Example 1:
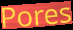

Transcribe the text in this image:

Pores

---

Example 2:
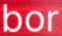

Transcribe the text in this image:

bor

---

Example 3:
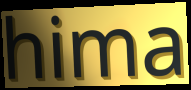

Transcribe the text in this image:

hima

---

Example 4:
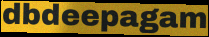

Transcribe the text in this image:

dbdeepagam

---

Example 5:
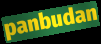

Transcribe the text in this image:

panbudan